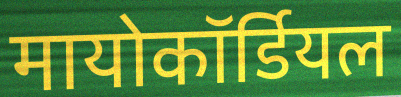
मायोकॉर्डियल